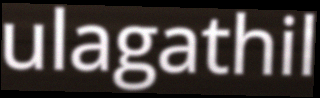
ulagathil